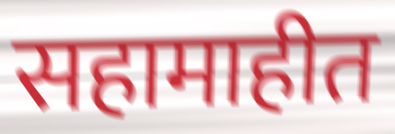
सहामाहीत